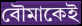
বৌমাকেই